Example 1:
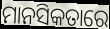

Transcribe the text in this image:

ମାନସିକତାରେ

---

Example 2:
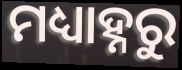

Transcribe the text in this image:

ମଧ୍ୟାହ୍ନରୁ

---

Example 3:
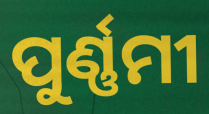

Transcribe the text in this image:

ପୁର୍ଣ୍ଣମୀ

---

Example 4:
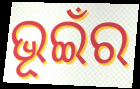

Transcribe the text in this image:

ଭୂଇଁର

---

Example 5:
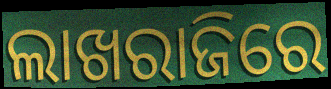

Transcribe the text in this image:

ଲାଖରାଜିରେ